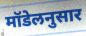
मॉडेलनुसार